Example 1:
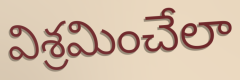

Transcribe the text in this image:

విశ్రమించేలా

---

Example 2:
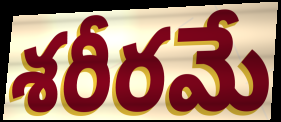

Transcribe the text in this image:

శరీరమే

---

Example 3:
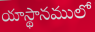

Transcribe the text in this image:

యాస్థానములో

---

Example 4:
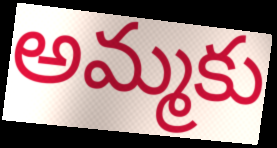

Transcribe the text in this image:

అమ్మకు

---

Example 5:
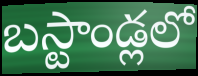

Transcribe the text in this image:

బస్టాండ్లలో